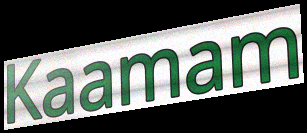
Kaamam